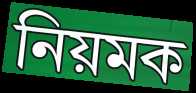
নিয়মক